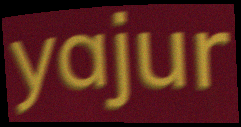
yajur